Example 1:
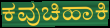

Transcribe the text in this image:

ಕವುಚಿಹಾಕಿ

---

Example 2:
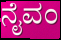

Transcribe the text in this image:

ನೈವಂ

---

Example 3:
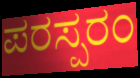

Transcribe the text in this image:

ಪರಸ್ಪರಂ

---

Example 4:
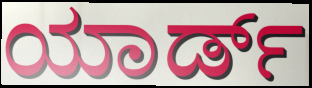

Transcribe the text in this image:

ಯಾರ್ಡ್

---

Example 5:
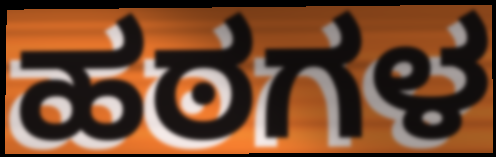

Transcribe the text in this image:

ಹಠಗಳ